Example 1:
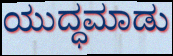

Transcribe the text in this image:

ಯುದ್ಧಮಾಡು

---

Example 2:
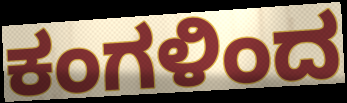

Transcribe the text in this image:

ಕಂಗಳಿಂದ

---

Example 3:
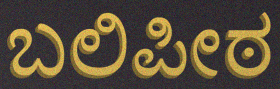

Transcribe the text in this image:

ಬಲಿಪೀಠ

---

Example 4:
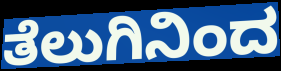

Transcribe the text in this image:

ತೆಲುಗಿನಿಂದ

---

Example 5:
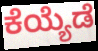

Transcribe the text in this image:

ಕೆಯ್ಯೆಡೆ